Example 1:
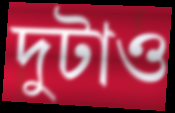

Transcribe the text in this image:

দুটাও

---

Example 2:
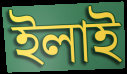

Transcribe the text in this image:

ইলাই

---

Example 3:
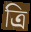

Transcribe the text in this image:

ত্ৰি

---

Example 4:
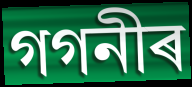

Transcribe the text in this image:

গগনীৰ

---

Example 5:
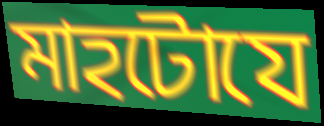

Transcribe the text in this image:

মাহটোযে